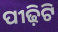
ପୀଢ଼ିଟି